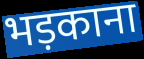
भड़काना